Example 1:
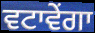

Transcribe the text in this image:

ਵਟਾਵੇਂਗਾ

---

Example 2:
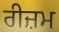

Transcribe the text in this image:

ਰੀਜ਼ਮ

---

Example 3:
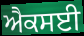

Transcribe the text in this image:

ਐਕਸਈ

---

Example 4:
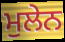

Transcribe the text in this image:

ਮੁਲੇਨ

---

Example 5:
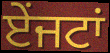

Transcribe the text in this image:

ਏਂਜਟਾਂ